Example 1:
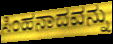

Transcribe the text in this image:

ಸಿಂಹನಾದವನ್ನು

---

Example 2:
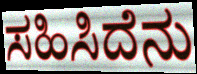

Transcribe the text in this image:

ಸಹಿಸಿದೆನು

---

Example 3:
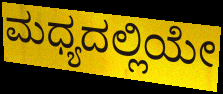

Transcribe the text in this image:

ಮಧ್ಯದಲ್ಲಿಯೇ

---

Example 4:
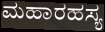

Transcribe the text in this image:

ಮಹಾರಹಸ್ಯ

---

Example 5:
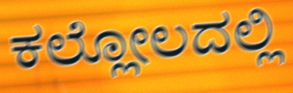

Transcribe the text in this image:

ಕಲ್ಲೋಲದಲ್ಲಿ